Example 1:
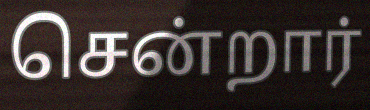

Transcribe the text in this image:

சென்றார்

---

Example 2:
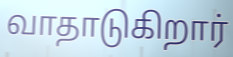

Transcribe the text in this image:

வாதாடுகிறார்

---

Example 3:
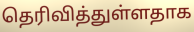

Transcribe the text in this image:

தெரிவித்துள்ளதாக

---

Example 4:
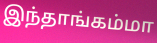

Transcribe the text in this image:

இந்தாங்கம்மா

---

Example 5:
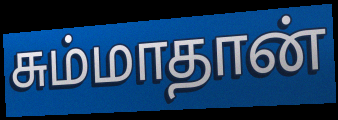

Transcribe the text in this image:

சும்மாதான்